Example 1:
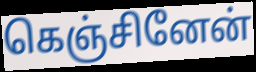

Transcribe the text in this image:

கெஞ்சினேன்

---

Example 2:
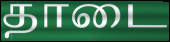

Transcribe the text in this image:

தாடை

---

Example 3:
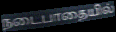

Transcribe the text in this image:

நடைபாதையில்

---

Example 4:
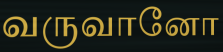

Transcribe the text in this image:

வருவானோ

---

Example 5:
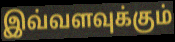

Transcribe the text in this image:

இவ்வளவுக்கும்